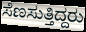
ಸೆಣಸುತ್ತಿದ್ದರು